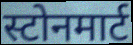
स्टोनमार्ट